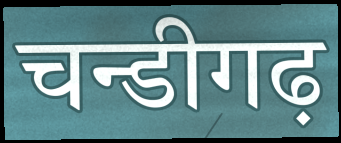
चन्डीगढ़